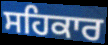
ਸਹਿਕਾਰ